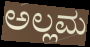
ಅಲ್ಲಮ